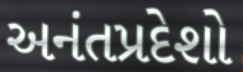
અનંતપ્રદેશો